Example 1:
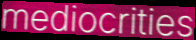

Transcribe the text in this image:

mediocrities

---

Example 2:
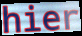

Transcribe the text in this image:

hier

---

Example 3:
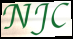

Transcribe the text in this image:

NJC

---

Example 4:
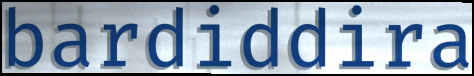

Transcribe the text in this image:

bardiddira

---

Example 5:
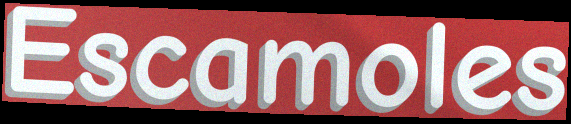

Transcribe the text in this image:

Escamoles